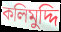
কলিমুদ্দি